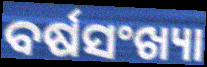
ବର୍ଷସଂଖ୍ୟା